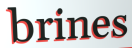
brines